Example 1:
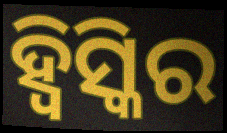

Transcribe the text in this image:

ହ୍ୱିସ୍କିର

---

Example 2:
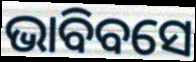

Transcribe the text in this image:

ଭାବିବସେ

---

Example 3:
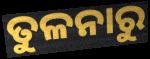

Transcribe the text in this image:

ତୁଳନାରୁ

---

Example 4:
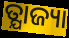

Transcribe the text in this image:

ତ୍ଯାଜ୍ୟା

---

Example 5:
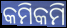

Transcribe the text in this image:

କମିକମି